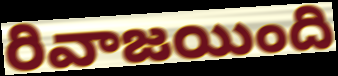
రివాజయింది